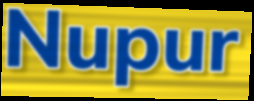
Nupur